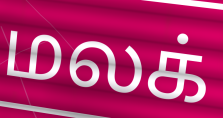
மலக்